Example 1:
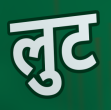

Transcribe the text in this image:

लुट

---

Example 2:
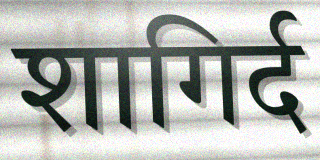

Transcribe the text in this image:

शागिर्द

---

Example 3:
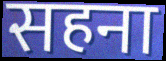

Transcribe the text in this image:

सहना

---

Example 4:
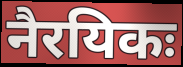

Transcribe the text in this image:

नैरयिकः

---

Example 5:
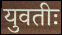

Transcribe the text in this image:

युवतीः